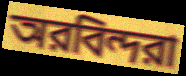
অরবিন্দরা